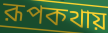
রূপকথায়